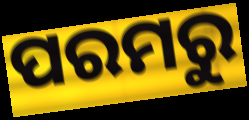
ପରମରୁ